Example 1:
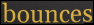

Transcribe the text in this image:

bounces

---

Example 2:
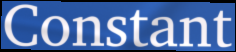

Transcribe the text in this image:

Constant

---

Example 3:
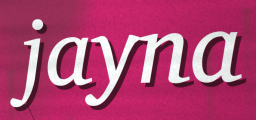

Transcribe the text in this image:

jayna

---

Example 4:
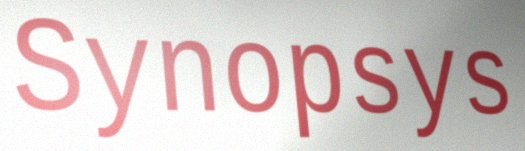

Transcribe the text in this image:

Synopsys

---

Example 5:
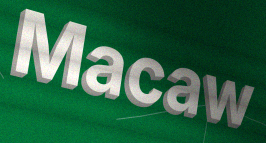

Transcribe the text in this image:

Macaw